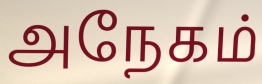
அநேகம்